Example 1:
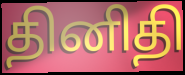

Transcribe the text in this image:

தினிதி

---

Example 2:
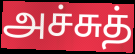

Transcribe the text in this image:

அச்சுத்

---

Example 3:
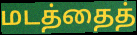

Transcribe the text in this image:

மடத்தைத்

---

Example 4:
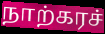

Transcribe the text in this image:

நாற்கரச்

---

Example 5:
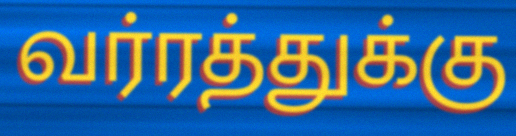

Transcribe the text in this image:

வர்ரத்துக்கு